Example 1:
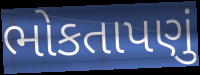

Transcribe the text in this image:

ભોકતાપણું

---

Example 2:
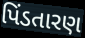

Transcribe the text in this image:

પિંડતારણ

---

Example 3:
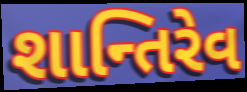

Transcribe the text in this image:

શાન્તિરેવ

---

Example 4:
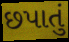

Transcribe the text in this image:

છપાતું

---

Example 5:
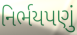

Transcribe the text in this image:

નિર્ભયપણું